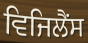
ਵਿਜਿਲੈਂਸ